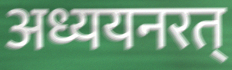
अध्ययनरत्